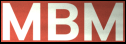
MBM